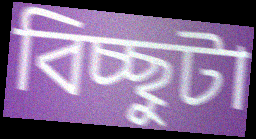
বিচ্ছুটা